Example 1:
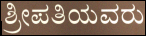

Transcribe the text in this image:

ಶ್ರೀಪತಿಯವರು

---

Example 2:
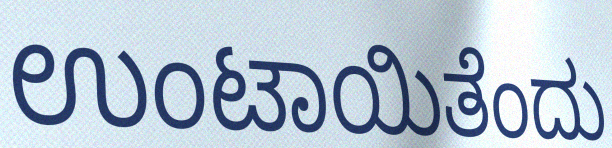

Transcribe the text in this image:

ಉಂಟಾಯಿತೆಂದು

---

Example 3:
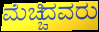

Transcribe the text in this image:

ಮೆಚ್ಚಿದವರು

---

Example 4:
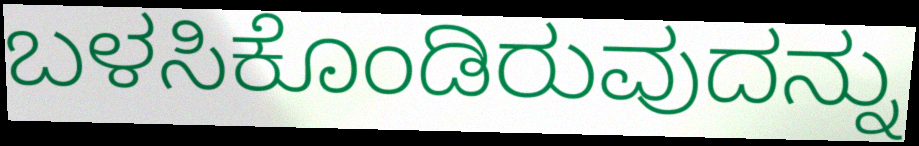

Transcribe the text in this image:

ಬಳಸಿಕೊಂಡಿರುವುದನ್ನು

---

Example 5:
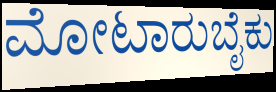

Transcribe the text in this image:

ಮೋಟಾರುಬೈಕು